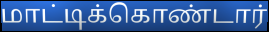
மாட்டிக்கொண்டார்